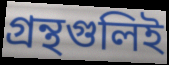
গ্রন্থগুলিই